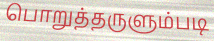
பொறுத்தருளும்படி